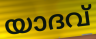
യാദവ്